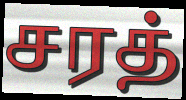
சரத்